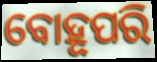
ବୋହୂପରି